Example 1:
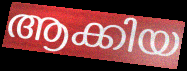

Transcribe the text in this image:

ആക്കിയ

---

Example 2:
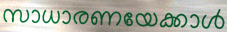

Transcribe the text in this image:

സാധാരണയേക്കാൾ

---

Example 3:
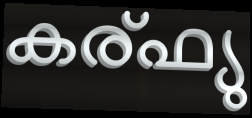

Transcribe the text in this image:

കര്ഫ്യു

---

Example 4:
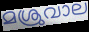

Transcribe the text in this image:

മശ്രുവാല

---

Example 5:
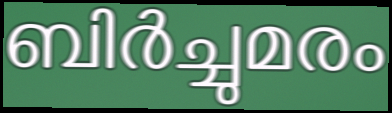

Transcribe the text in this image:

ബിർച്ചുമരം